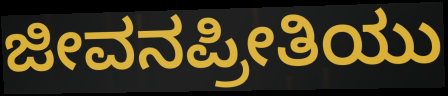
ಜೀವನಪ್ರೀತಿಯು